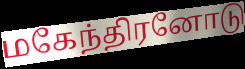
மகேந்திரனோடு